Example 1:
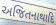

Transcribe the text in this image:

અજિતનાથાદિ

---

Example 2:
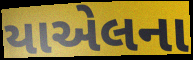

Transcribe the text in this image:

યાએલના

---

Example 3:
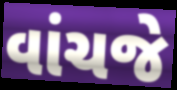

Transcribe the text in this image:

વાંચજે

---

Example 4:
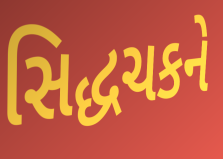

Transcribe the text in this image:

સિદ્ધચકને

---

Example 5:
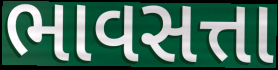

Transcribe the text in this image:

ભાવસત્તા